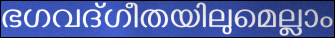
ഭഗവദ്ഗീതയിലുമെല്ലാം